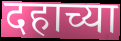
दहाच्या